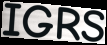
IGRS